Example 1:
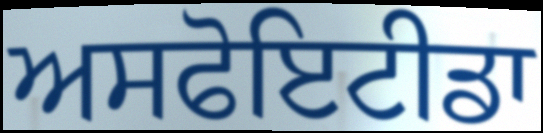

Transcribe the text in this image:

ਅਸਫੋਇਟੀਡਾ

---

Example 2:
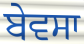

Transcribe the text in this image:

ਬੇਵਸਾ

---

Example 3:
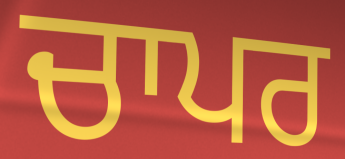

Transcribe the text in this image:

ਚਾਪਰ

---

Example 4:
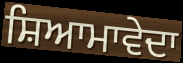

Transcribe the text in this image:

ਸ਼ਿਆਮਾਵੇਦਾ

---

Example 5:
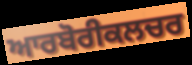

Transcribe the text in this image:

ਆਰਬੋਰੀਕਲਚਰ